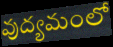
వుద్యమంలో